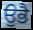
ਉਭੈ